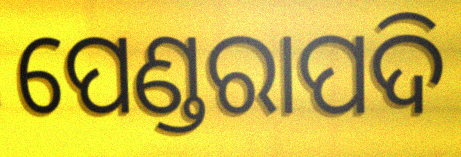
ପେଣ୍ଡରାପଦି